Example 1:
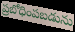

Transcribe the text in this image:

ప్రబోధింపబడును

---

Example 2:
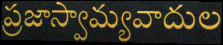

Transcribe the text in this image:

ప్రజాస్వామ్యవాదుల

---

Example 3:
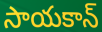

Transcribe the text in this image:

సాయకాన్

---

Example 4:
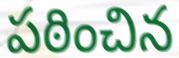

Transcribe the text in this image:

పఠించిన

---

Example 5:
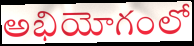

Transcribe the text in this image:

అభియోగంలో